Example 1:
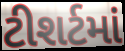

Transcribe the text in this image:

ટીશર્ટમાં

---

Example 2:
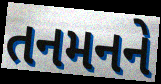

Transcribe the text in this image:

તનમનને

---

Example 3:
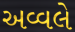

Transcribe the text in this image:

અવ્વલે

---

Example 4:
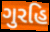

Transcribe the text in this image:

ગુરહિ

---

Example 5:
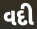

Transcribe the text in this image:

વદી